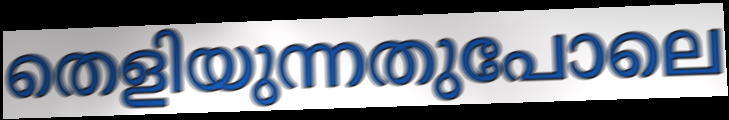
തെളിയുന്നതുപോലെ